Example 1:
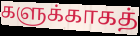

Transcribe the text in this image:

களுக்காகத்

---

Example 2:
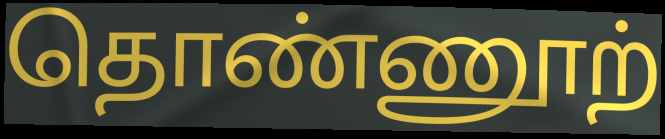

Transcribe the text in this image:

தொண்ணூற்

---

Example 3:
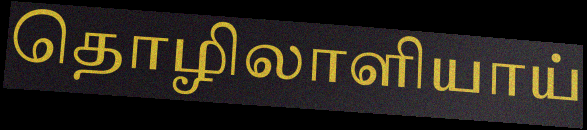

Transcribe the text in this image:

தொழிலாளியாய்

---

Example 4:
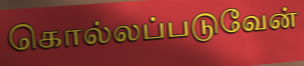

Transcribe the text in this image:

கொல்லப்படுவேன்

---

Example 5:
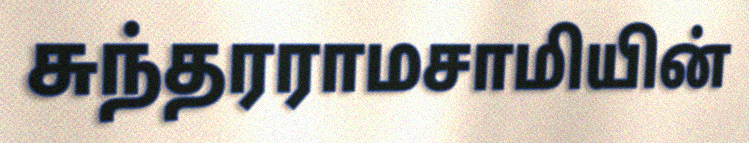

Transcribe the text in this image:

சுந்தரராமசாமியின்